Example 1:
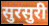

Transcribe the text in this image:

सुरसुरी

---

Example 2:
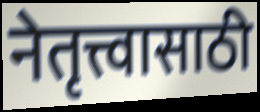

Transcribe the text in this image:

नेतृत्त्वासाठी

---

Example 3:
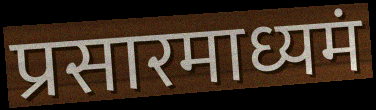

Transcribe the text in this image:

प्रसारमाध्यमं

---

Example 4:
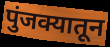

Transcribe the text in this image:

पुंजक्यातून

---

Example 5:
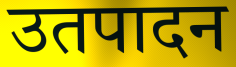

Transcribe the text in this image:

उतपादन